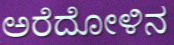
ಅರೆದೋಳಿನ